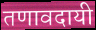
तणावदायी